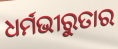
ଧର୍ମଭୀରୁତାର